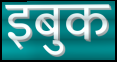
इबुक